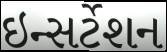
ઇન્સર્ટેશન